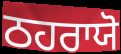
ਠਹਰਾਯੋ